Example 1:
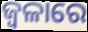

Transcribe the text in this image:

ଜ୍ୱଳାରେ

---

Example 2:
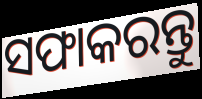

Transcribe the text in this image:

ସଫାକରନ୍ତୁ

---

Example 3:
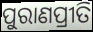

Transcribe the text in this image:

ପୁରାଣପ୍ରୀତି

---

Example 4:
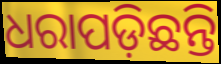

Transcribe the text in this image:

ଧରାପଡ଼ିଛନ୍ତି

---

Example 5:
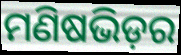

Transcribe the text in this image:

ମଣିଷଭିଡ଼ର